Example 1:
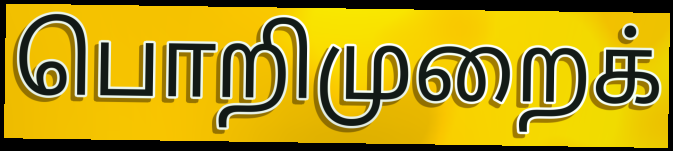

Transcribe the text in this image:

பொறிமுறைக்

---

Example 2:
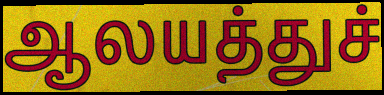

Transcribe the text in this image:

ஆலயத்துச்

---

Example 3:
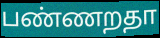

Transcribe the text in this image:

பண்ணறதா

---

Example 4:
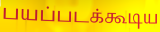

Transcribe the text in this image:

பயப்படக்கூடிய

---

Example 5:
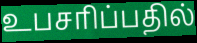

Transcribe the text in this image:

உபசரிப்பதில்